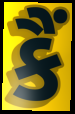
કૈં